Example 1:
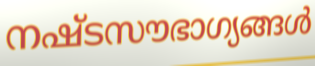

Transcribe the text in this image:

നഷ്ടസൗഭാഗ്യങ്ങൾ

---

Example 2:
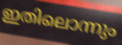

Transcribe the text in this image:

ഇതിലൊന്നും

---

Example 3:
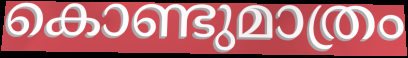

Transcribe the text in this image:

കൊണ്ടുമാത്രം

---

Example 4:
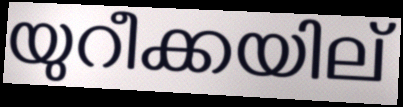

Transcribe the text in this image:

യുറീക്കയില്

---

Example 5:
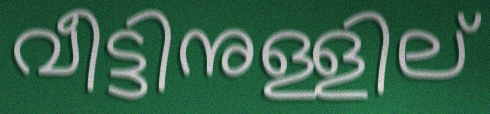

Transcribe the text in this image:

വീട്ടിനുള്ളില്